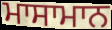
ਮਾਸਾਮਾਨ